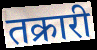
तक्रारी